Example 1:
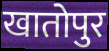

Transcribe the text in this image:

खातोपुर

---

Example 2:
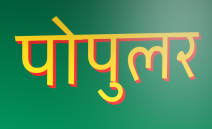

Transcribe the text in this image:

पोपुलर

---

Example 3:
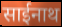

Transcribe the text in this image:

साईनाथ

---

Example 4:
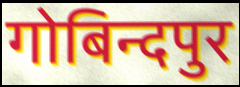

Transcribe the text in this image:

गोबिन्दपुर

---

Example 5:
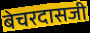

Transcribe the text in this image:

बेचरदासजी